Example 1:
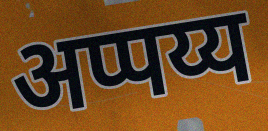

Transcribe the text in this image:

अप्पय्य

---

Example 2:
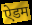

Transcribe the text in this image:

ऐडम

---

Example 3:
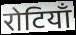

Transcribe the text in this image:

रोटियाँ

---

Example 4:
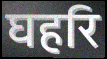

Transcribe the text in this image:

घहरि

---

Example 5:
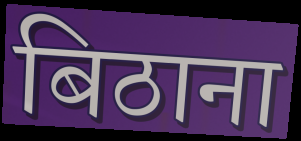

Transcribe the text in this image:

बिठाना